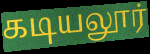
கடியலூர்